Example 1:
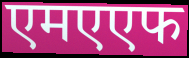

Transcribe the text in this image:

एमएएफ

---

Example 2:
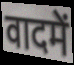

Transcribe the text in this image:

वादमें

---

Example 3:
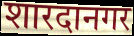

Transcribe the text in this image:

शारदानगर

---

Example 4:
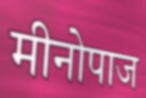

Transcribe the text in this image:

मीनोपाज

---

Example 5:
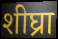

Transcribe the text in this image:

शीघ्रा